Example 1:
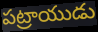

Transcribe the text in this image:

పట్రాయుడు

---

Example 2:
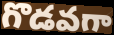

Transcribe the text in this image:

గొడవగా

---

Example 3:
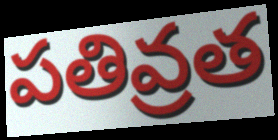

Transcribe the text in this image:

పతివ్రత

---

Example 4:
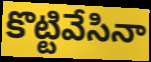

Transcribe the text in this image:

కొట్టివేసినా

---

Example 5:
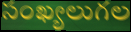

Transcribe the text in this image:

సంఖ్యలుగల